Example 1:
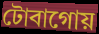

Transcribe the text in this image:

টোবাগোয়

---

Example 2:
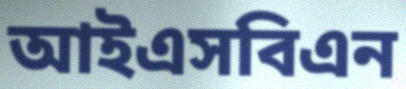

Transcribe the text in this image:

আইএসবিএন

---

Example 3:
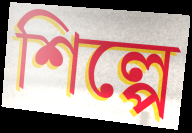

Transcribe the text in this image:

শিল্পে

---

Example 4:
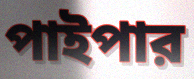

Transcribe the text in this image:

পাইপার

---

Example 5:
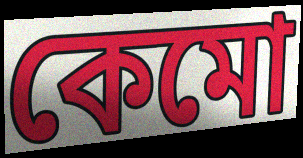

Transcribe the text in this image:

কেমো